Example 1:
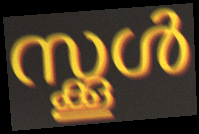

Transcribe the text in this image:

സ്ക്കൂൾ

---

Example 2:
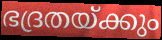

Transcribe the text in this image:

ഭദ്രതയ്ക്കും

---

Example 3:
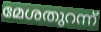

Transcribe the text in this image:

മേശതുറന്ന്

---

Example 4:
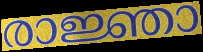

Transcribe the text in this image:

രാജ്ഞാ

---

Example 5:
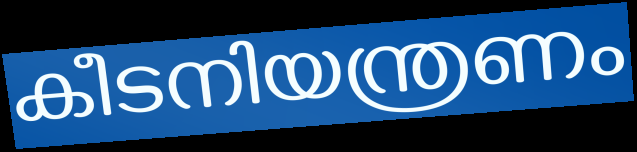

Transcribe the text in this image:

കീടനിയന്ത്രണം